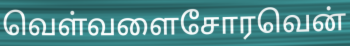
வெள்வளைசோரவென்